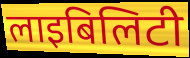
लाइबिलिटी